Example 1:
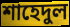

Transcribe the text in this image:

শাহেদুল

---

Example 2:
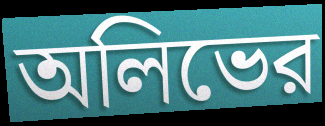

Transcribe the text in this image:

অলিভের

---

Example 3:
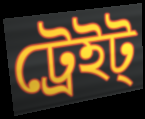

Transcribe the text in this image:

ট্রেইট্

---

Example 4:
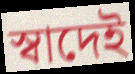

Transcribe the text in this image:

স্বাদেই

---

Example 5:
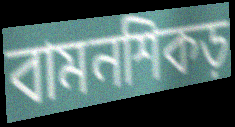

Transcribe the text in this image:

বামনশিকড়